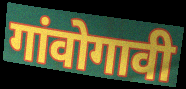
गांवोगावी